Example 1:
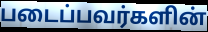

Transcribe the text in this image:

படைப்பவர்களின்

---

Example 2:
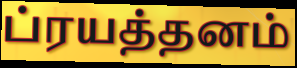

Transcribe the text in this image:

ப்ரயத்தனம்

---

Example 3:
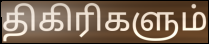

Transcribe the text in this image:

திகிரிகளும்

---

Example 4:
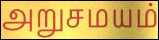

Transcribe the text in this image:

அறுசமயம்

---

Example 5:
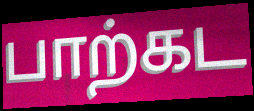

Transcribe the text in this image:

பாற்கட